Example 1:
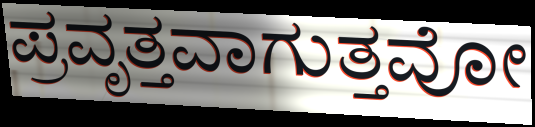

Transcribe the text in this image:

ಪ್ರವೃತ್ತವಾಗುತ್ತವೋ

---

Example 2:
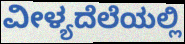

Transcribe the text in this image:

ವೀಳ್ಯದೆಲೆಯಲ್ಲಿ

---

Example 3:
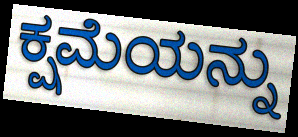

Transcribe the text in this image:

ಕ್ಷಮೆಯನ್ನು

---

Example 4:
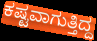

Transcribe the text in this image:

ಕಷ್ಟವಾಗುತ್ತಿದ್ದ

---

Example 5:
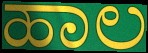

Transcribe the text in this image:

ಹಾಲ